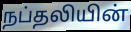
நப்தலியின்